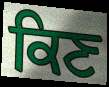
ਕਿਣ